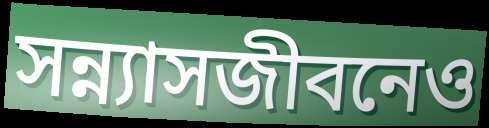
সন্ন্যাসজীবনেও